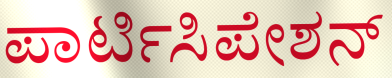
ಪಾರ್ಟಿಸಿಪೇಶನ್